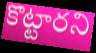
కొట్టారని